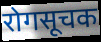
रोगसूचक